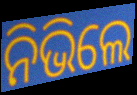
ନିଭିଲେ